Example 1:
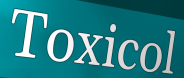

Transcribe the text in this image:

Toxicol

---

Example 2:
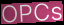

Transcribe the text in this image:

OPCs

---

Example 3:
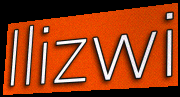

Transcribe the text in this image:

Ilizwi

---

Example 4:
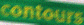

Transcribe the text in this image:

contours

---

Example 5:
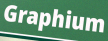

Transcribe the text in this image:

Graphium